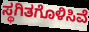
ಸ್ಥಗಿತಗೊಳಿಸಿವೆ